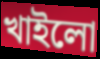
খাইলো